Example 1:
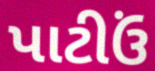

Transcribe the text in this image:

પાટીઉં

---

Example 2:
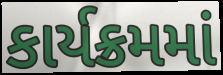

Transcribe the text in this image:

કાર્યક્રમમાં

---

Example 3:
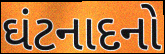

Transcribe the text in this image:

ઘંટનાદનો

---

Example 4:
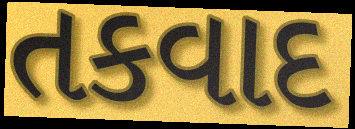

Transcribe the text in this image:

તકવાદ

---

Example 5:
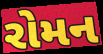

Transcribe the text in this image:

રોમન